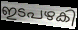
ഇടപഴകി